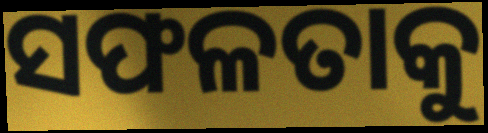
ସଫଳତାକୁ